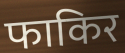
फाकिर